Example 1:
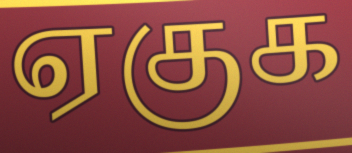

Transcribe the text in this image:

ஏகுக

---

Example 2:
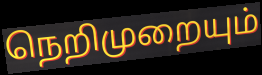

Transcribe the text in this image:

நெறிமுறையும்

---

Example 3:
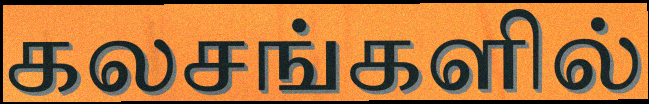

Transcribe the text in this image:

கலசங்களில்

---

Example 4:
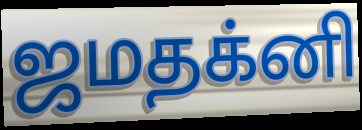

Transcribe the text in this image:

ஜமதக்னி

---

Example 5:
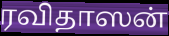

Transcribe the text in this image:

ரவிதாஸன்